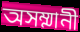
অসম্মানী